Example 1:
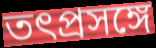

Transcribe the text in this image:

তৎপ্রসঙ্গে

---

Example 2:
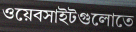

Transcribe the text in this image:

ওয়েবসাইটগুলোতে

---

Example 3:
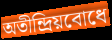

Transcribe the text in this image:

অতীন্দ্রিয়বোধে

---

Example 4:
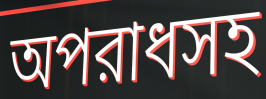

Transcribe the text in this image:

অপরাধসহ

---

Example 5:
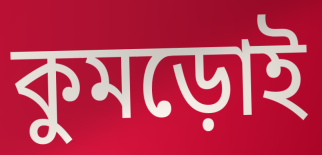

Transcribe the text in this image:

কুমড়োই